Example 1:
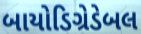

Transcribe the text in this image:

બાયોડિગ્રેડેબલ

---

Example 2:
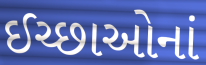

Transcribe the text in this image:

ઈચ્છાઓનાં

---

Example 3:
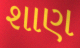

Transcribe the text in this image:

શાણ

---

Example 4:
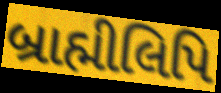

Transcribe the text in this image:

બ્રાહ્મીલિપિ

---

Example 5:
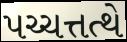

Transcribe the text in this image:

પચ્ચત્તત્થે